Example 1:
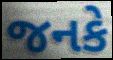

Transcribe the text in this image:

જનકે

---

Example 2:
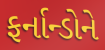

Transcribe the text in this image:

ફર્નાન્ડોને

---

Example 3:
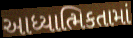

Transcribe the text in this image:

આધ્યાત્મિકતામાં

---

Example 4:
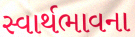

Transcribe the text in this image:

સ્વાર્થભાવના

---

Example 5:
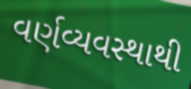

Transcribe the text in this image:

વર્ણવ્યવસ્થાથી